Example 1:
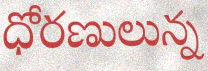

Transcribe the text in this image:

ధోరణులున్న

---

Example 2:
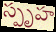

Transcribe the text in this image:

స్పృహ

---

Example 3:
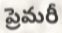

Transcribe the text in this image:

ప్రెమరీ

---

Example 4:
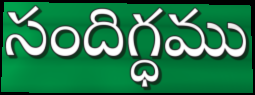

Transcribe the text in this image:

సందిగ్ధము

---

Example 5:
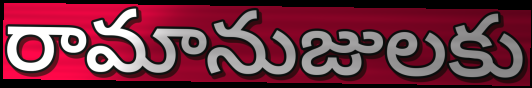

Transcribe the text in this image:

రామానుజులకు